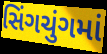
સિંગચુંગમાં